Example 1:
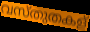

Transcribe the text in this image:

വസ്തുതകള്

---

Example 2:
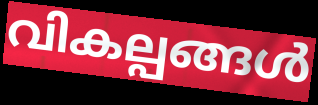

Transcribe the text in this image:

വികല്പങ്ങൾ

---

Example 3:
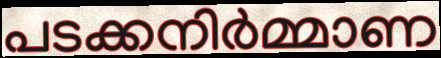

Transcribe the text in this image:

പടക്കനിർമ്മാണ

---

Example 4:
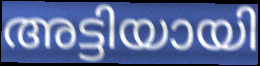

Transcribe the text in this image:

അട്ടിയായി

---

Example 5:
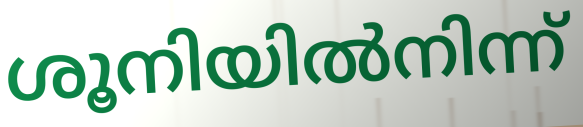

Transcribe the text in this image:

ശൂനിയിൽനിന്ന്